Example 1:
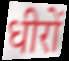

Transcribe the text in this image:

धीरों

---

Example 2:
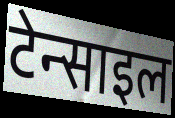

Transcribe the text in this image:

टेन्साइल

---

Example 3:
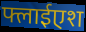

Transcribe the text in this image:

फ्लाईएश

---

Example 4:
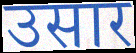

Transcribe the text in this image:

उसार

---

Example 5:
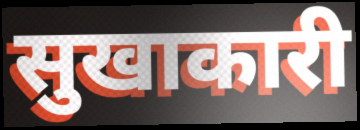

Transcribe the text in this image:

सुखाकारी